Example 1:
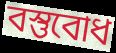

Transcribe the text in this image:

বস্তুবোধ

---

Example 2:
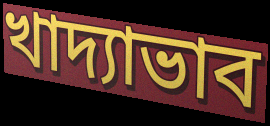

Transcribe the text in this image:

খাদ্যাভাব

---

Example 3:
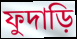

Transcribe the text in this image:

ফুদাড়ি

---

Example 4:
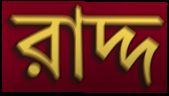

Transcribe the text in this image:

রাদ্দ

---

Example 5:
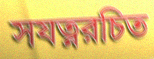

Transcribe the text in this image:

সযত্নরচিত